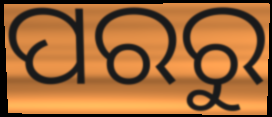
ପରରୁ